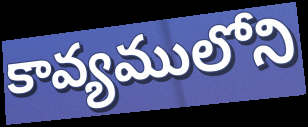
కావ్యములోని